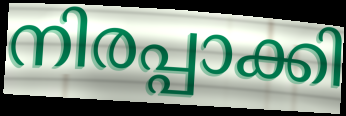
നിരപ്പാക്കി